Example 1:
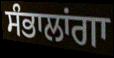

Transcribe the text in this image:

ਸੰਭਾਲਾਂਗਾ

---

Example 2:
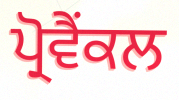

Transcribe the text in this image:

ਪ੍ਰੋਵੈਂਕਲ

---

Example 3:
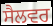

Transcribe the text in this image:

ਸੈਲਵਰ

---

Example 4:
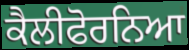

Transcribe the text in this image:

ਕੈਲੀਫੋਰਨਿਆ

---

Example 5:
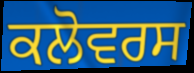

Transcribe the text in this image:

ਕਲੋਵਰਸ